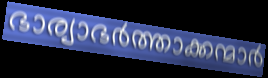
ഭാര്യാഭർത്താക്കന്മാർ